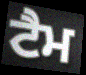
ਟੈਮ